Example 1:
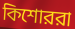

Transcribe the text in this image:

কিশোররা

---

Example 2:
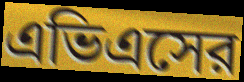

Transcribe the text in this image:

এভিএসের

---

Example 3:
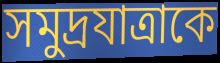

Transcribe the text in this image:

সমুদ্রযাত্রাকে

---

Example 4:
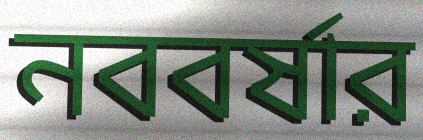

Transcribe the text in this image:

নববর্ষার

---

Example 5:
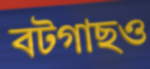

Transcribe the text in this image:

বটগাছও